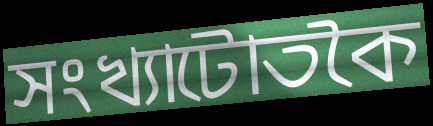
সংখ্যাটোতকৈ